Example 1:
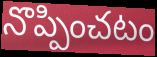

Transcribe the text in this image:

నొప్పించటం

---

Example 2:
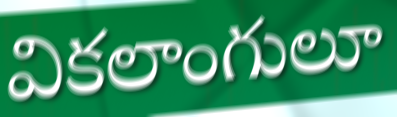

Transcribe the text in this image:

వికలాంగులూ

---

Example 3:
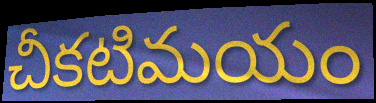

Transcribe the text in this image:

చీకటిమయం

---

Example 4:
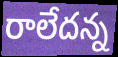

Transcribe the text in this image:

రాలేదన్న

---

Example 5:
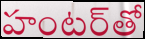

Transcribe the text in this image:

హంటర్‌తో